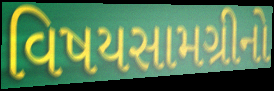
વિષયસામગ્રીનો